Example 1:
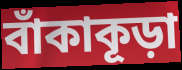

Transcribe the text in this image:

বাঁকাকূড়া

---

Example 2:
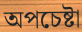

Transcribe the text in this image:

অপচেষ্টা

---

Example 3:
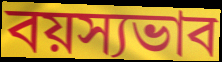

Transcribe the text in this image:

বয়স্যভাব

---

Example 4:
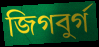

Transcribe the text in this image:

জিগবুর্গ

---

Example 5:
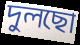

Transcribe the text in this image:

দুলছো